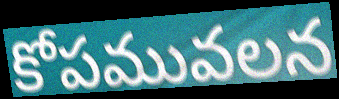
కోపమువలన